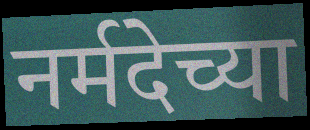
नर्मदेच्या